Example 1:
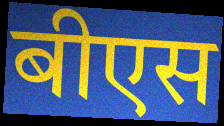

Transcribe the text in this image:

बीएस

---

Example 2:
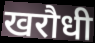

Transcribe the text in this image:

खरौधी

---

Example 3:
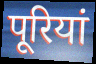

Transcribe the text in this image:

पूरियां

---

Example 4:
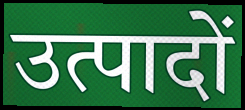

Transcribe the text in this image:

उत्पादों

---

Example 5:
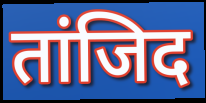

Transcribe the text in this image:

तांजिद